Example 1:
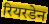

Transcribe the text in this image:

रियरडेन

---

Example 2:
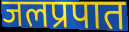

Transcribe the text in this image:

जलप्रपात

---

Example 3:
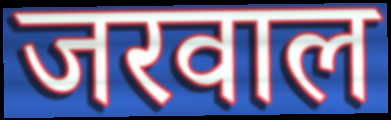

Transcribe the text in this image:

जरवाल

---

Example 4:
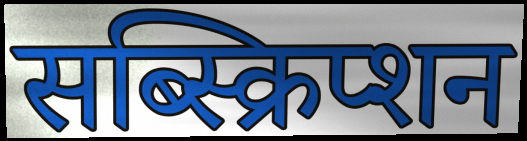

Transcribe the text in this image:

सब्स्क्रिप्शन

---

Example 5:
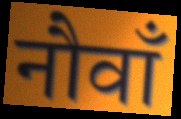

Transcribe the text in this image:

नौवाँ